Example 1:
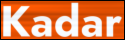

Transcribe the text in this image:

Kadar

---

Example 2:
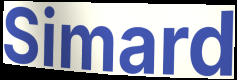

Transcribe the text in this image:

Simard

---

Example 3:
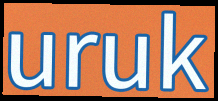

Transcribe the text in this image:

uruk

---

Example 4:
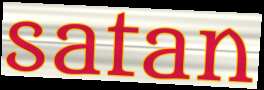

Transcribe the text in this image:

satan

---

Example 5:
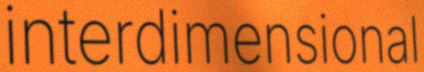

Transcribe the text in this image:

interdimensional